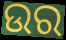
ଉର